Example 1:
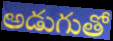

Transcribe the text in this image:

అడుగుతో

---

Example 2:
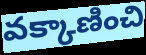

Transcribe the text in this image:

వక్కాణించి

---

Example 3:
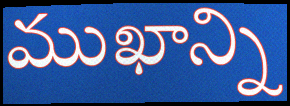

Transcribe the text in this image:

ముఖాన్ని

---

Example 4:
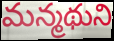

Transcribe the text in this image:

మన్మథుని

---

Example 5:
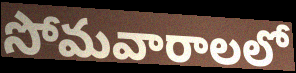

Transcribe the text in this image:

సోమవారాలలో